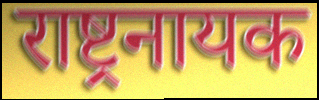
राष्ट्रनायक